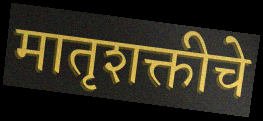
मातृशक्तीचे